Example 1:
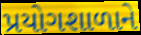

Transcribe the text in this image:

પ્રયોગશાળાને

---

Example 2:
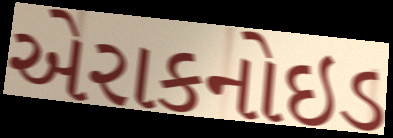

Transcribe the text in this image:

એરાકનોઇડ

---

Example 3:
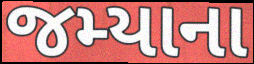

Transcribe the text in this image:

જમ્યાના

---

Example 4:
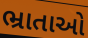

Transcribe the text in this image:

ભ્રાતાઓ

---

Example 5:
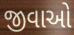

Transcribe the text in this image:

જીવાઓ